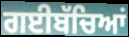
ਗਈਬੱਚਿਆਂ